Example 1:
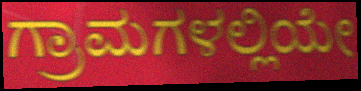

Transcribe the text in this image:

ಗ್ರಾಮಗಳಲ್ಲಿಯೇ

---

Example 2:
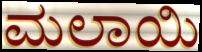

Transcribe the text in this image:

ಮಲಾಯಿ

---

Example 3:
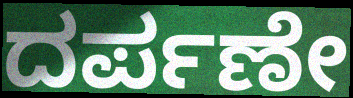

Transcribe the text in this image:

ದರ್ಪಣೇ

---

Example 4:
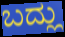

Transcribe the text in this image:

ಬದ್ಲು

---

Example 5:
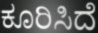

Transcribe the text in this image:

ಕೂರಿಸಿದೆ